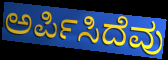
ಅರ್ಪಿಸಿದೆವು